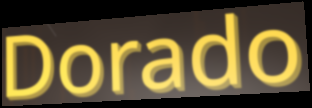
Dorado